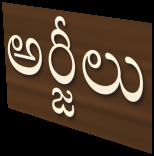
అర్జీలు